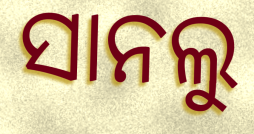
ସାନଲୁ